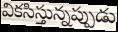
వికసిస్తున్నప్పుడు